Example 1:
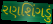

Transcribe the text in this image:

રણશિંગડું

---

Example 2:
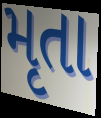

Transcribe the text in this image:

મૃતા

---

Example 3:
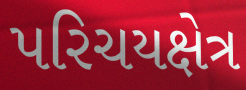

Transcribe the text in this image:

પરિચયક્ષેત્ર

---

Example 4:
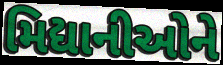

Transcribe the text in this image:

મિદ્યાનીઓને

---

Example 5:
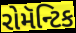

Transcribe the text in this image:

રોમૅન્ટિક